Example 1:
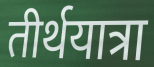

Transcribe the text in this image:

तीर्थयात्रा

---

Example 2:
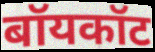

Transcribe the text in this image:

बॉयकॉट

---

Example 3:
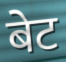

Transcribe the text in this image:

बेट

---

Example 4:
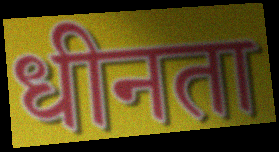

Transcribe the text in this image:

धीनता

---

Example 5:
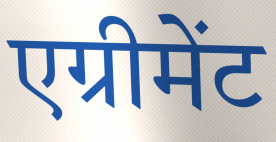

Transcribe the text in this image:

एग्रीमेंट